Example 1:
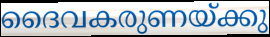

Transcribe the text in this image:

ദൈവകരുണയ്ക്കു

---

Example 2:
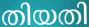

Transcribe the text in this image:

തിയതി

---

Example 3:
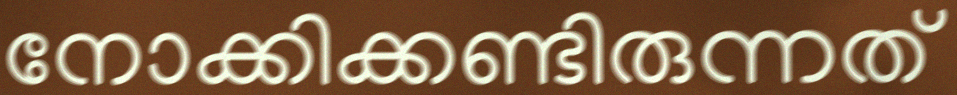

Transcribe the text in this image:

നോക്കിക്കണ്ടിരുന്നത്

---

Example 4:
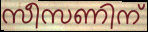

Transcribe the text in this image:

സീസണിന്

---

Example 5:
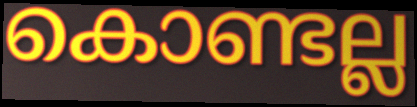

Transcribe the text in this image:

കൊണ്ടല്ല